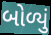
બોળ્યું